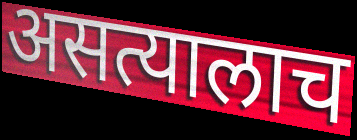
असत्यालाच